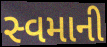
સ્વમાની